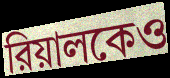
রিয়ালকেও